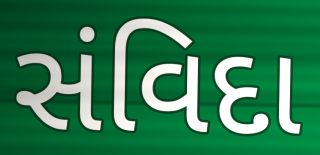
સંવિદા